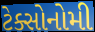
ટેક્સોનોમી